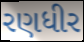
રણધીર